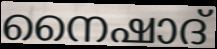
നൈഷാദ്